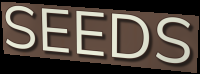
SEEDS